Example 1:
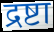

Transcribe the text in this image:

द्रष्टा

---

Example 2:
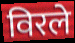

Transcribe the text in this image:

विरले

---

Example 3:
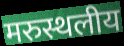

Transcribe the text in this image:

मरुस्थलीय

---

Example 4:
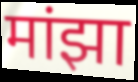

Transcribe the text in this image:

मांझा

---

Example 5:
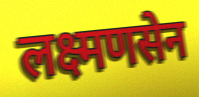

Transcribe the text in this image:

लक्ष्मणसेन